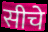
सीचे